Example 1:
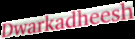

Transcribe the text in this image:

Dwarkadheesh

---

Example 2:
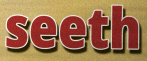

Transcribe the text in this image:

seeth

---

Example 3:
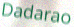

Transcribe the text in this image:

Dadarao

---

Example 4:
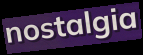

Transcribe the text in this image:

nostalgia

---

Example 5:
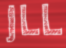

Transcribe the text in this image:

JLL